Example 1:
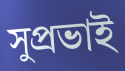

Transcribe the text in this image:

সুপ্রভাই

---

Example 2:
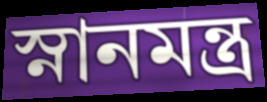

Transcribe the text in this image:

স্নানমন্ত্র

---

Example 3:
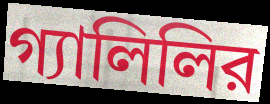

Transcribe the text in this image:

গ্যালিলির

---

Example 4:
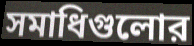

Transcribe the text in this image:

সমাধিগুলোর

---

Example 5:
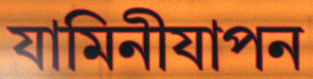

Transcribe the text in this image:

যামিনীযাপন